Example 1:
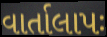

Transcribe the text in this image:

વાર્તાલાપઃ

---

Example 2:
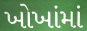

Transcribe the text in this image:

ખોખાંમાં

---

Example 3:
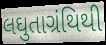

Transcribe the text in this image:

લઘુતાગ્રંથિથી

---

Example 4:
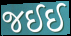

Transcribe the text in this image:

જઈઈ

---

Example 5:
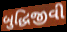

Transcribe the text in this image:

બુદ્ધિજીવી